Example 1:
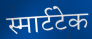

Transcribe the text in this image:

स्मार्टटेक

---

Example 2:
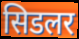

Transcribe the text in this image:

सिडलर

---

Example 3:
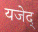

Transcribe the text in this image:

यजेद्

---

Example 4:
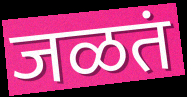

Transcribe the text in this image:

जळतं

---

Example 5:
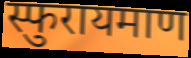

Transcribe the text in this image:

स्फुरायमाण